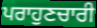
ਪਰਾਹੁਣਚਾਰੀ